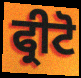
ਫ੍ਰੀਟੋ